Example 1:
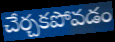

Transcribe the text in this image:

చేర్చకపోవడం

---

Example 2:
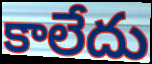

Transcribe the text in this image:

కాలేదు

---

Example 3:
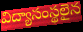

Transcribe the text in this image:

విద్యాసంస్థలైన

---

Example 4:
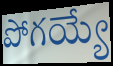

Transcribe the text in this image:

పోగయ్యే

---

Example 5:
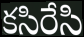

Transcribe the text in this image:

కసిరేసి